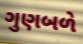
ગુણબળે